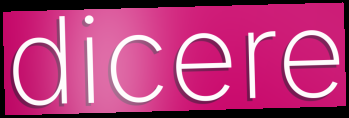
dicere